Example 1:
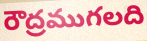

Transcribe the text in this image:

రౌద్రముగలది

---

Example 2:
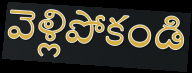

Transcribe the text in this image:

వెళ్లిపోకండి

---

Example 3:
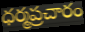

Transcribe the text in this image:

ధర్మప్రచారం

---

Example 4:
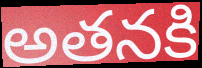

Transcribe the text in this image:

అతనకి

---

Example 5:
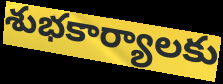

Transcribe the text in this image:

శుభకార్యాలకు